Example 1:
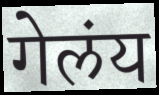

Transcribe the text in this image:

गेलंय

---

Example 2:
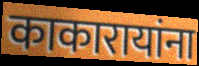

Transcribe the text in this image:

काकारायांना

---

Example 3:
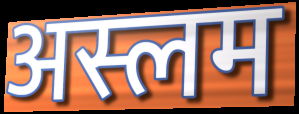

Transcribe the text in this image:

अस्लम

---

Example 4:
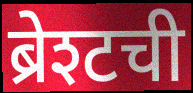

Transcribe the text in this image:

ब्रेश्टची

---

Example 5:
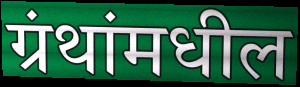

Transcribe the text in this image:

ग्रंथांमधील